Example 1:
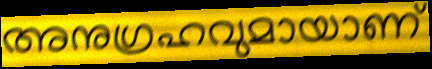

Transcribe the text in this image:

അനുഗ്രഹവുമായാണ്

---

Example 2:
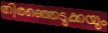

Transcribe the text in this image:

തിരഞ്ഞെടുക്കയും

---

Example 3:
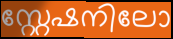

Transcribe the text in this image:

സ്റ്റേഷനിലോ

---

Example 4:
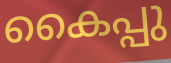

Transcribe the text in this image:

കൈപ്പു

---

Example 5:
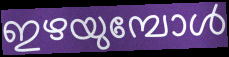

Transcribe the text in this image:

ഇഴയുമ്പോൾ